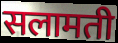
सलामती